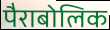
पैराबोलिक